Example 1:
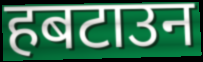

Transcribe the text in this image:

हबटाउन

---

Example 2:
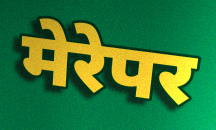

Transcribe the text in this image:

मेरेपर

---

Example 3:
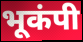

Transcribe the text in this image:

भूकंपी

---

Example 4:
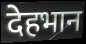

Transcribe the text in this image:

देहभान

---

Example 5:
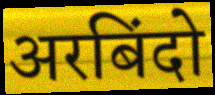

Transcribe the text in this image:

अरबिंदो